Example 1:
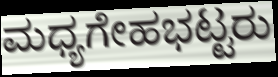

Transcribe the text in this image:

ಮಧ್ಯಗೇಹಭಟ್ಟರು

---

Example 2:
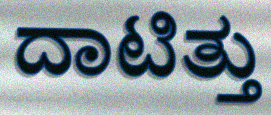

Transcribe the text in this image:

ದಾಟಿತ್ತು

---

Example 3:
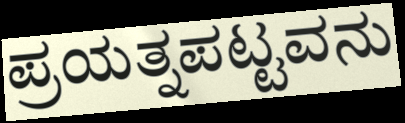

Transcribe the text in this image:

ಪ್ರಯತ್ನಪಟ್ಟವನು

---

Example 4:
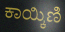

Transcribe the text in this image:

ಕಾಯ್ಕಿಣಿ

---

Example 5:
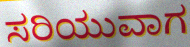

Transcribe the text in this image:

ಸರಿಯುವಾಗ